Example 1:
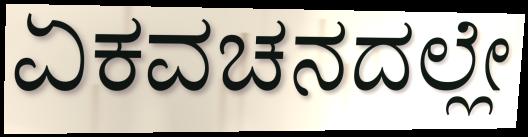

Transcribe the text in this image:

ಏಕವಚನದಲ್ಲೇ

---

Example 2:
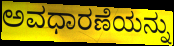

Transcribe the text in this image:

ಅವಧಾರಣೆಯನ್ನು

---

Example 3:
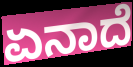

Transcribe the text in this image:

ಏನಾದೆ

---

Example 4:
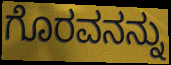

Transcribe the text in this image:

ಗೊರವನನ್ನು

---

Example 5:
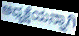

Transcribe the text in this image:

ಅಧ್ಯಕ್ಷೆಯನ್ನಾಗಿ